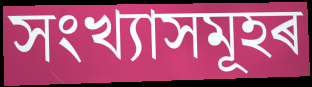
সংখ্যাসমূহৰ